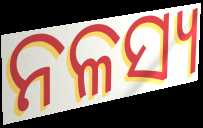
ନଳସ୍ୟ